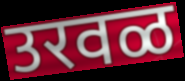
उरवळ